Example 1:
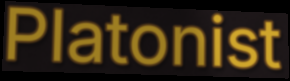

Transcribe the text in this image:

Platonist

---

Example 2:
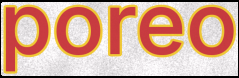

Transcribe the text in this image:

poreo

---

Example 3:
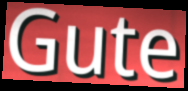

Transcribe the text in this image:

Gute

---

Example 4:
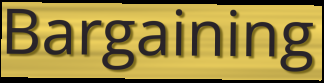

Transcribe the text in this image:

Bargaining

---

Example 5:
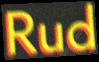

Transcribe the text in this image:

Rud